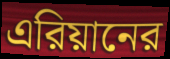
এরিয়ানের